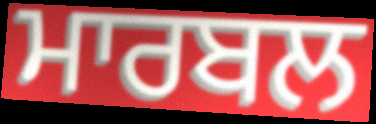
ਮਾਰਬਲ